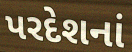
પરદેશનાં